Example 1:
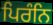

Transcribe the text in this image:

ਪਿਰੰਨਿ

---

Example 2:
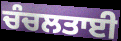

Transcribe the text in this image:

ਚੰਚਲਤਾਈ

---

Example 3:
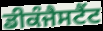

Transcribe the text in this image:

ਡੀਕੰਜੈਸਟੈਂਟ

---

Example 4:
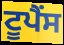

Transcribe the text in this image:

ਟੂਪੈਂਸ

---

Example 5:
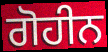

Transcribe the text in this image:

ਗੋਹੀਨ